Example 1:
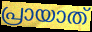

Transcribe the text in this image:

പ്രായാത്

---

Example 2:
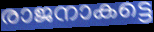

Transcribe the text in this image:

രാജനാകട്ടെ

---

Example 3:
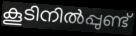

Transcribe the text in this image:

കൂടിനിൽപ്പുണ്ട്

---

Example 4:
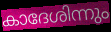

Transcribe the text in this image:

കാദേശിന്നും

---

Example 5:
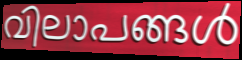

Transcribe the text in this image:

വിലാപങ്ങൾ